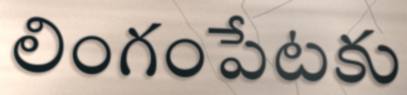
లింగంపేటకు